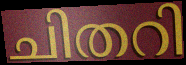
ചിതറി